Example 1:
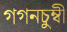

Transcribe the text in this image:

গগনচুম্বী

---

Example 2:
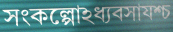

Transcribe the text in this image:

সংকল্পোঽধ্যবসাযশ্চ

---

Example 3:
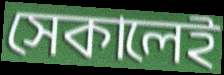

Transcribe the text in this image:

সেকালেই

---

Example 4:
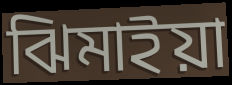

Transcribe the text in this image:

ঝিমাইয়া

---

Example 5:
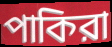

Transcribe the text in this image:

পাকিরা